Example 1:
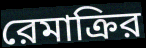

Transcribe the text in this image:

রেমাক্রির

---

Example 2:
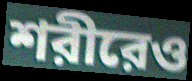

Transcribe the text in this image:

শরীরেও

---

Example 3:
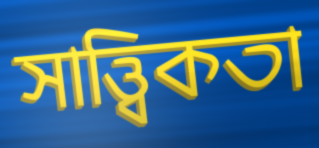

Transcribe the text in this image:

সাত্ত্বিকতা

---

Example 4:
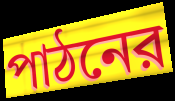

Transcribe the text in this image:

পাঠনের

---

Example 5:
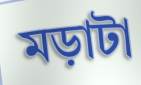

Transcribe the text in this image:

মড়াটা